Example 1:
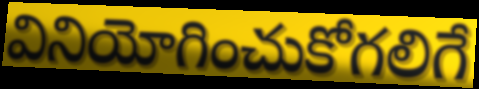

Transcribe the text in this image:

వినియోగించుకోగలిగే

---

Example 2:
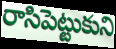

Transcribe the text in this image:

రాసిపెట్టుకుని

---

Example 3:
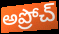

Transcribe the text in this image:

అప్రోచ్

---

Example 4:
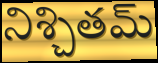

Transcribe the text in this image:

నిశ్చితమ్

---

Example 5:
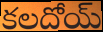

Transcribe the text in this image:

కలదోయ్